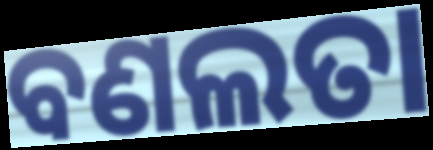
ବଣଲତା